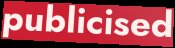
publicised